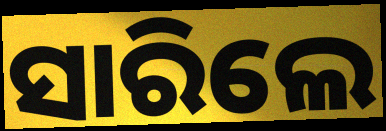
ସାରିଲେ